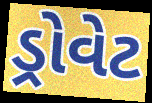
ડ્રોવેટ